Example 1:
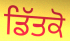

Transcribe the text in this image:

ਡਿੱਤਕੋ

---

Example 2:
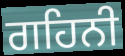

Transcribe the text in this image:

ਗਹਿਨੀ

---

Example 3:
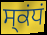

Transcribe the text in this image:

ਸ੍ਕਂਧਂ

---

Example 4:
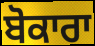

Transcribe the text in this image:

ਬੋਕਾਰਾ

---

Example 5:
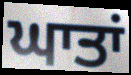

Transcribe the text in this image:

ਘਾਤਾਂ